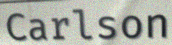
Carlson